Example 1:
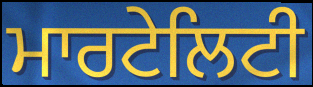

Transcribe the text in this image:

ਮਾਰਟੇਲਿਟੀ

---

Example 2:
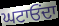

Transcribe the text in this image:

ਘਟਾਓਂਦਾ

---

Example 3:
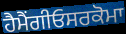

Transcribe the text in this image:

ਹੈਮੈਂਗੀਓਸਰਕੋਮਾ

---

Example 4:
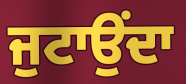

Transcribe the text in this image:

ਜੁਟਾਉਂਦਾ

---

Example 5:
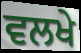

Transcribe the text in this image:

ਵਲਖੇ